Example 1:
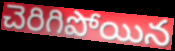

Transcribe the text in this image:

చెరిగిపోయిన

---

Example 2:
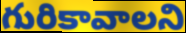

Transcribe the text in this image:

గురికావాలని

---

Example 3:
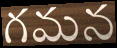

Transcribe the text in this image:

గమన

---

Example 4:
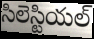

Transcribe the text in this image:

సిలెస్టియల్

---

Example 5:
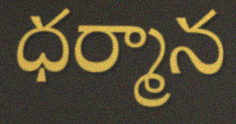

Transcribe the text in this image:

ధర్మాన